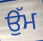
ਉੱਮ